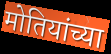
मोतियांच्या